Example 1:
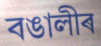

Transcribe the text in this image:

বঙালীৰ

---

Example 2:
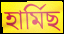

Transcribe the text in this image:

হাৰ্মিছ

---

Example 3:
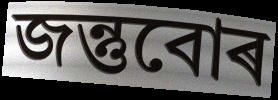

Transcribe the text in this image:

জন্তুবোৰ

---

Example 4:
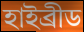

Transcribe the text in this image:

হাইব্ৰীড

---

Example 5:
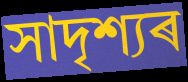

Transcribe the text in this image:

সাদৃশ্যৰ